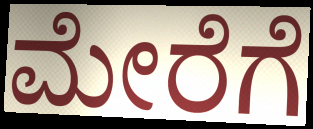
ಮೇರೆಗೆ